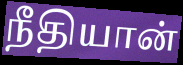
நீதியான்